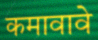
कमावावे